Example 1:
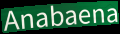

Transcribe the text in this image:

Anabaena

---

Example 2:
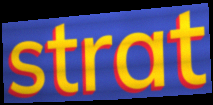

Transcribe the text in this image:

strat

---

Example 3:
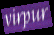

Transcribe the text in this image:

virpur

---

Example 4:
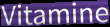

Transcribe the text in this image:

Vitamine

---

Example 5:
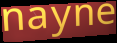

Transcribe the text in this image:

nayne